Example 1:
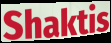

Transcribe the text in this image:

Shaktis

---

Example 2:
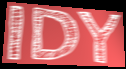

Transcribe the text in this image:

IDY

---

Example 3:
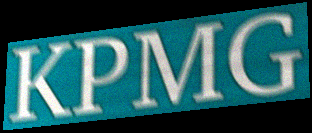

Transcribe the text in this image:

KPMG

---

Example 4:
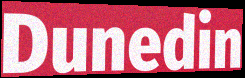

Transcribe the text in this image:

Dunedin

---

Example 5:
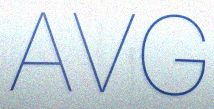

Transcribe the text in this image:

AVG